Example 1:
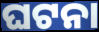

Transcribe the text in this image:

ଘଟନା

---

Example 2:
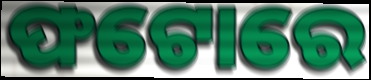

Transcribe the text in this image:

ଫଟୋରେ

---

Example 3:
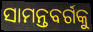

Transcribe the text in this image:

ସାମନ୍ତବର୍ଗକୁ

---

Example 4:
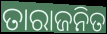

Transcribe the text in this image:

ତାରାଜନିତ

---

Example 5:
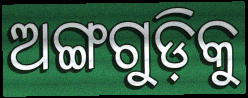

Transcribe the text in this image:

ଅଙ୍ଗଗୁଡ଼ିକୁ